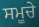
ਸਮੂਚੇ